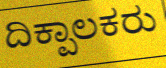
ದಿಕ್ಪಾಲಕರು